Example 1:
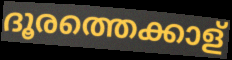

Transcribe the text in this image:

ദൂരത്തെക്കാള്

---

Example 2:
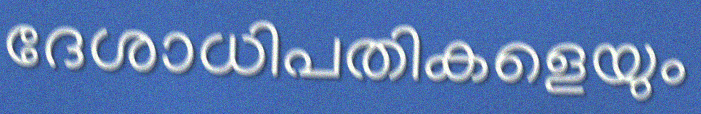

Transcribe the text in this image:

ദേശാധിപതികളെയും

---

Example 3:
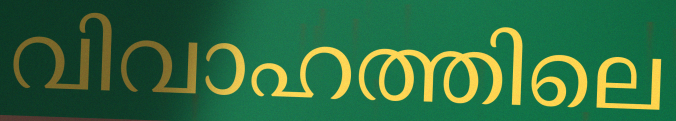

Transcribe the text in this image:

വിവാഹത്തിലെ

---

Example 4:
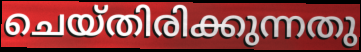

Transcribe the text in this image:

ചെയ്തിരിക്കുന്നതു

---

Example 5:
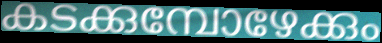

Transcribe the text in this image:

കടക്കുമ്പോഴേക്കും